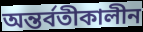
অন্তর্বতীকালীন